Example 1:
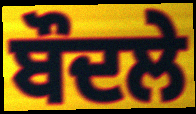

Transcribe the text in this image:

ਬੌਦਲੇ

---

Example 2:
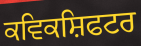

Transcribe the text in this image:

ਕਵਿਕਸ਼ਿਫਟਰ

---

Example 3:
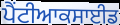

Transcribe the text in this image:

ਪੈਂਟੀਆਕਸਾਈਡ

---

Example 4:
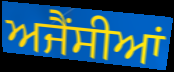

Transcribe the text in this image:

ਅਜੈਂਸੀਆਂ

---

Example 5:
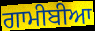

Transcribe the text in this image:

ਗਾਮੀਬੀਆ